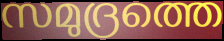
സമുദ്രത്തെ